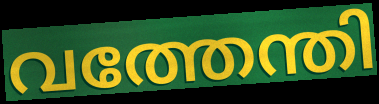
വത്തേന്തി